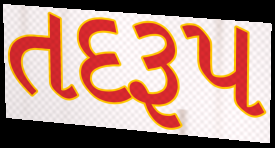
તદરૂપ